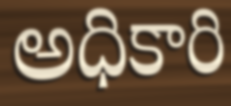
అధికారి